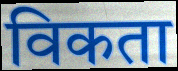
विकता